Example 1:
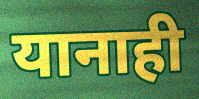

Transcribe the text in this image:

यानाही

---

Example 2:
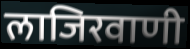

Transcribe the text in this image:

लाजिरवाणी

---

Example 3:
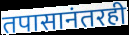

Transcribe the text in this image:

तपासानंतरही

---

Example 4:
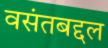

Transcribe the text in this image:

वसंतबद्दल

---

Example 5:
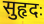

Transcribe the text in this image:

सुहृदः